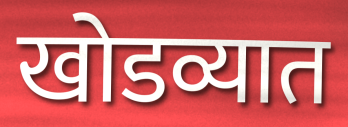
खोडव्यात